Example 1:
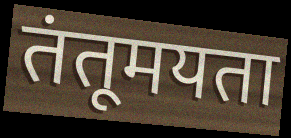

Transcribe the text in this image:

तंतूमयता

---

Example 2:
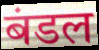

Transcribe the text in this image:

बंडल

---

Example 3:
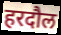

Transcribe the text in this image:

हरदौल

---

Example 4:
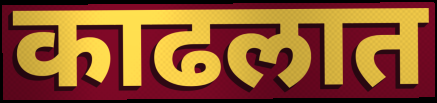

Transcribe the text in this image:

काढलात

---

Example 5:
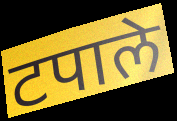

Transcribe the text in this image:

टपाले